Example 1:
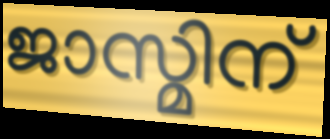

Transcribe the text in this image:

ജാസ്മിന്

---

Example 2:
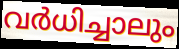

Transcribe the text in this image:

വർധിച്ചാലും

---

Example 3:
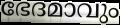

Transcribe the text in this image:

ഭേദമാവും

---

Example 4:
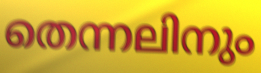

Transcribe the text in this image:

തെന്നലിനും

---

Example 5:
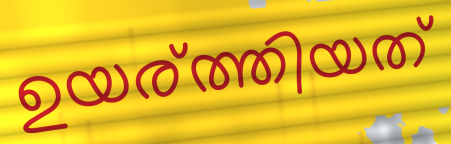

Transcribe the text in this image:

ഉയര്ത്തിയത്